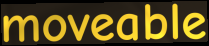
moveable